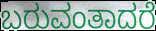
ಬರುವಂತಾದರೆ